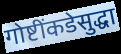
गोष्टींकडेसुद्धा